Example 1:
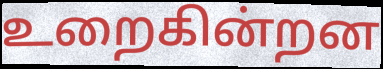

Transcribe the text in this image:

உறைகின்றன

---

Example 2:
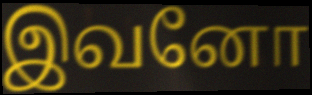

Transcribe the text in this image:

இவனோ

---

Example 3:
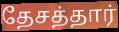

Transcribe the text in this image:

தேசத்தார்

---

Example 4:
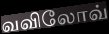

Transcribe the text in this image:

வவிலோவ்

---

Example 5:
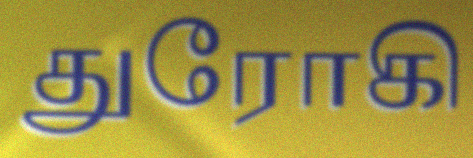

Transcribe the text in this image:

துரோகி